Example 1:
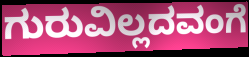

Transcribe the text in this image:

ಗುರುವಿಲ್ಲದವಂಗೆ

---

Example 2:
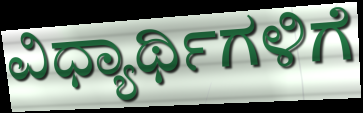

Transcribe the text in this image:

ವಿಧ್ಯಾರ್ಥಿಗಳಿಗೆ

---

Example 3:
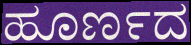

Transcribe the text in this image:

ಹೂರ್ಣದ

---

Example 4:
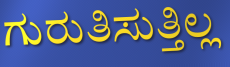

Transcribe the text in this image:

ಗುರುತಿಸುತ್ತಿಲ್ಲ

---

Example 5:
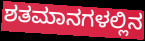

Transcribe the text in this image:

ಶತಮಾನಗಳಲ್ಲಿನ